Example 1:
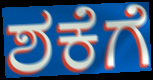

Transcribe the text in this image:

ಶಕೆಗೆ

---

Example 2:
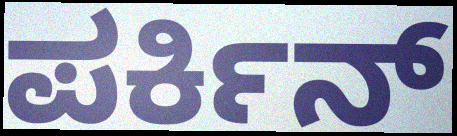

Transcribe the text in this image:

ಪರ್ಕಿನ್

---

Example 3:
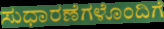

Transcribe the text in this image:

ಸುಧಾರಣೆಗಳೊಂದಿಗೆ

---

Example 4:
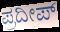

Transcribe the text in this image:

ಪ್ರದೀಪ್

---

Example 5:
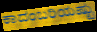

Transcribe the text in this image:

ಕಾದಂಬರಿಯಷ್ಟು